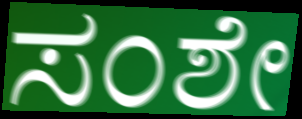
ಸಂಶೇ